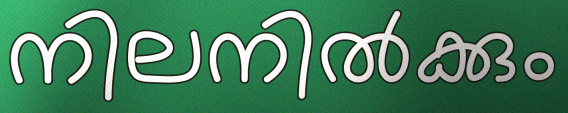
നിലനിൽക്കും